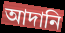
আদানি